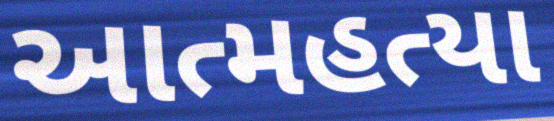
આત્મહત્યા